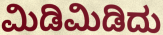
ಮಿಡಿಮಿಡಿದು